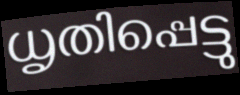
ധൃതിപ്പെട്ടു